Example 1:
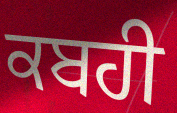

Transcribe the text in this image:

ਕਬਹੀ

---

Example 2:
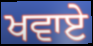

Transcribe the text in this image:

ਖਵਾਏ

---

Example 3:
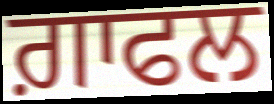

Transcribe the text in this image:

ਗ਼ਾਫਲ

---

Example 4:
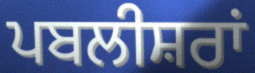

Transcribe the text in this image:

ਪਬਲੀਸ਼ਰਾਂ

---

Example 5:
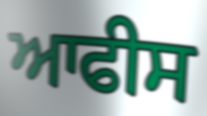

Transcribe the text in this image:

ਆਫੀਸ